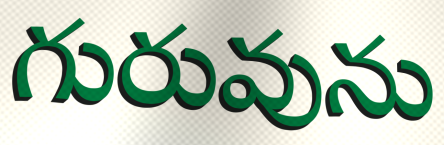
గురువును